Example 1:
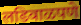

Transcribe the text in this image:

लडिवाळपणे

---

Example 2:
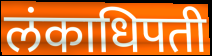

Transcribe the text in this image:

लंकाधिपती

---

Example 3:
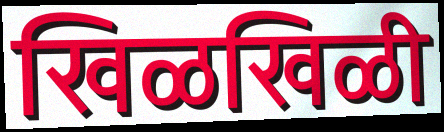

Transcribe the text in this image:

खिळखिळी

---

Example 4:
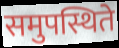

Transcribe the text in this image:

समुपस्थिते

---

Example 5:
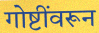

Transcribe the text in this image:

गोष्टींवरून